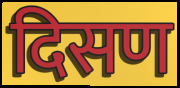
दिसण